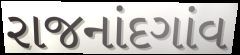
રાજનાંદગાંવ